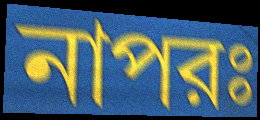
নাপরঃ